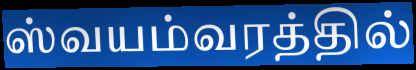
ஸ்வயம்வரத்தில்